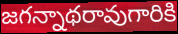
జగన్నాథరావుగారికి